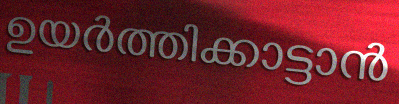
ഉയർത്തിക്കാട്ടാൻ